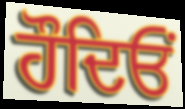
ਹੌਦਿਓਂ